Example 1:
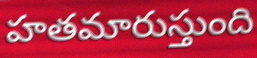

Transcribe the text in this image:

హతమారుస్తుంది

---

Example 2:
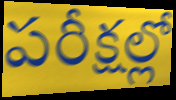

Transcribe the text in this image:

పరీక్షల్లో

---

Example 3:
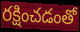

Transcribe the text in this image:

రక్షించడంతో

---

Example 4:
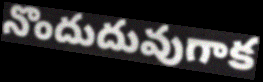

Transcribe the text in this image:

నొందుదువుగాక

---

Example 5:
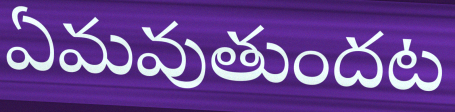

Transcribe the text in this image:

ఏమవుతుందట